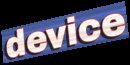
device